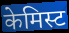
केमिस्ट